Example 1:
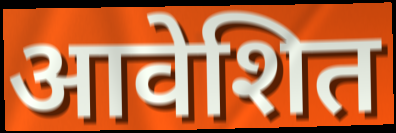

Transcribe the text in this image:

आवेशित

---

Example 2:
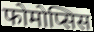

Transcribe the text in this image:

फोमोप्सिस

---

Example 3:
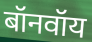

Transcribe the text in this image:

बॉनवॉय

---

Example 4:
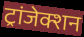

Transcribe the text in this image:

ट्रांजेक्शन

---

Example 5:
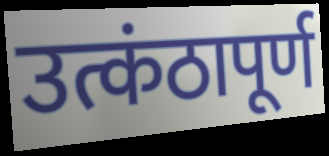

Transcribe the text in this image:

उत्कंठापूर्ण